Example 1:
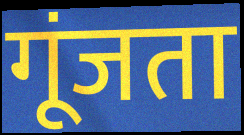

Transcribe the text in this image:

गूंजता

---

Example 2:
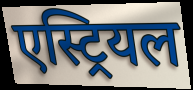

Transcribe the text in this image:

एस्ट्रियल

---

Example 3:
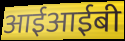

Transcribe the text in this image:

आईआईबी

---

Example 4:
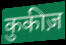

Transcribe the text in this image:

कुकीज़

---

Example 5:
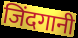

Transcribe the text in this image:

जिंदगानी